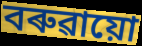
বৰুৱায়ো